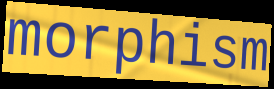
morphism